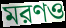
মরণও